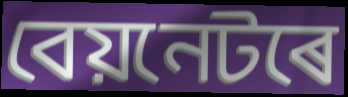
বেয়নেটৰে